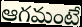
ఆగమంటే